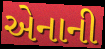
એનાની